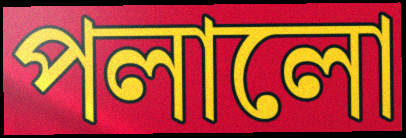
পলালো